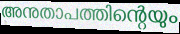
അനുതാപത്തിന്റെയും